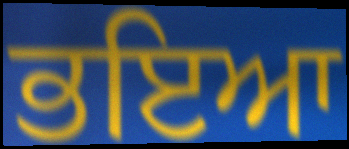
ਭਇਆ